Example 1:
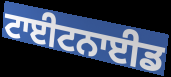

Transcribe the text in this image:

ਟਾਈਟਨਾਈਡ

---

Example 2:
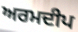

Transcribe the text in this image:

ਅਰਮਦੀਪ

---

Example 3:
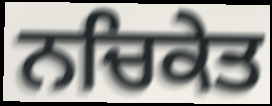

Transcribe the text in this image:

ਨਚਿਕੇਤ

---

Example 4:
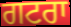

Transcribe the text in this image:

ਗਟਰਾ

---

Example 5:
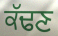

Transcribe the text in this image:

ਕੱਢਣ